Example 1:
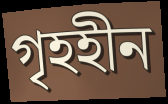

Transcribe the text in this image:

গৃহহীন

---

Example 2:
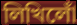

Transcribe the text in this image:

লিখিলোঁ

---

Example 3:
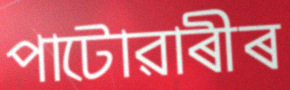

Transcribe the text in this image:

পাটোৱাৰীৰ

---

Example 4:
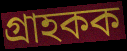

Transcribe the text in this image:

গ্ৰাহকক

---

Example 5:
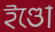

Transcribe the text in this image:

ইণ্ডো